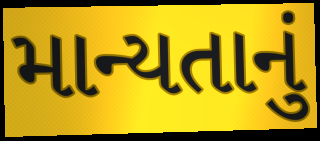
માન્યતાનું